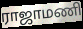
ராஜாமணி